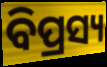
ବିପ୍ରସ୍ୟ